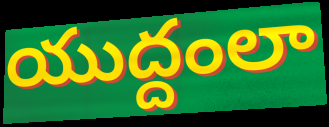
యుద్దంలా